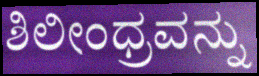
ಶಿಲೀಂಧ್ರವನ್ನು